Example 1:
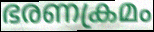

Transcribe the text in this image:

ഭരണക്രമം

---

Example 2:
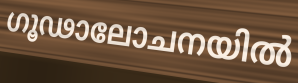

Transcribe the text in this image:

ഗൂഢാലോചനയിൽ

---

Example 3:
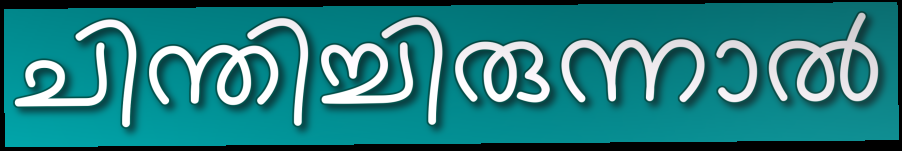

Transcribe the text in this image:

ചിന്തിച്ചിരുന്നാൽ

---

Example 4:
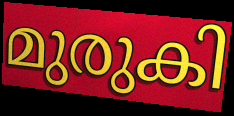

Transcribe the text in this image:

മുരുകി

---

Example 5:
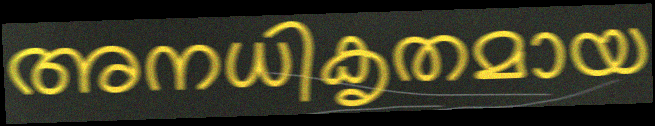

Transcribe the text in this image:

അനധികൃതമായ